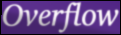
Overflow